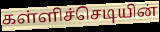
கள்ளிச்செடியின்